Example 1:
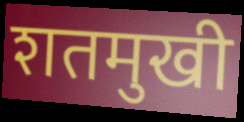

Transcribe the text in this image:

शतमुखी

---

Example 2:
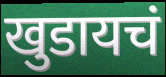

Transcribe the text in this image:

खुडायचं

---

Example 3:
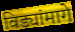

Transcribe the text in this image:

विड्यांमागे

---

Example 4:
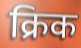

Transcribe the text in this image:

क्रिक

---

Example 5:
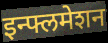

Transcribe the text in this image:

इन्फ्लमेशन